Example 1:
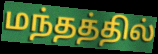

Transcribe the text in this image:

மந்தத்தில்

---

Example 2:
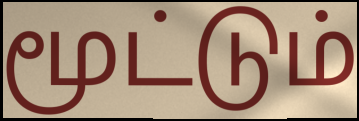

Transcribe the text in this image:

மூட்டும்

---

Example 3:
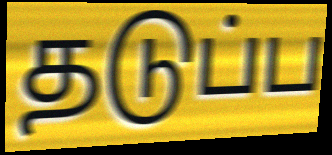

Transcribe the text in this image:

தடுப்ப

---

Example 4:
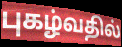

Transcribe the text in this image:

புகழ்வதில்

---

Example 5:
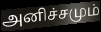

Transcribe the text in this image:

அனிச்சமும்